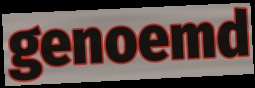
genoemd